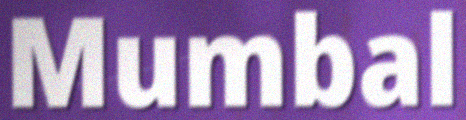
Mumbal